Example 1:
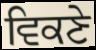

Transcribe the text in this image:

ਵਿਕਣੇ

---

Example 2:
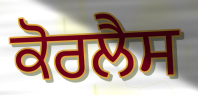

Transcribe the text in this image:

ਕੋਰਲੈਸ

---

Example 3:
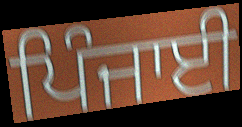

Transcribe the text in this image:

ਪਿੰਜਾਈ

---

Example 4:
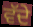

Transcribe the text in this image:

ਵੱਦੇ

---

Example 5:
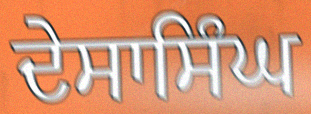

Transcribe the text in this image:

ਦੇਸਾਸਿੰਘ